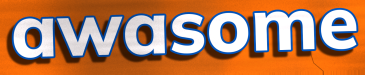
awasome